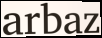
arbaz